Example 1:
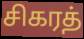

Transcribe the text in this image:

சிகரத்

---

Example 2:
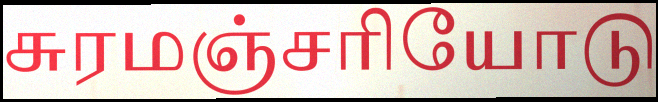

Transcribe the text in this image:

சுரமஞ்சரியோடு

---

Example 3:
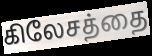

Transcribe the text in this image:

கிலேசத்தை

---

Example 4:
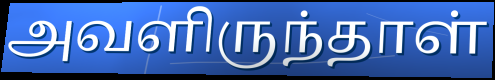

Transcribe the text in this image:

அவளிருந்தாள்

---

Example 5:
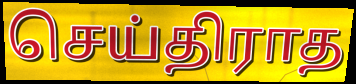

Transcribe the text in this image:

செய்திராத